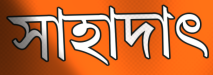
সাহাদাৎ